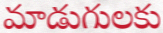
మాడుగులకు